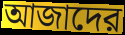
আজাদের